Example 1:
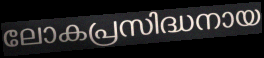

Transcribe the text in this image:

ലോകപ്രസിദ്ധനായ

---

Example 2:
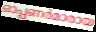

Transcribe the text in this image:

ഓപ്പണർമാരായ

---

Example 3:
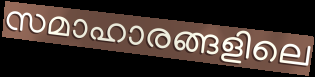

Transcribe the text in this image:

സമാഹാരങ്ങളിലെ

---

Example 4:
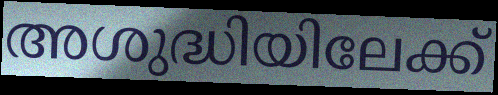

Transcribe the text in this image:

അശുദ്ധിയിലേക്ക്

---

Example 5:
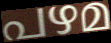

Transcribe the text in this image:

പഴമ